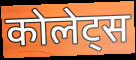
कोलेट्स